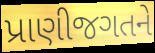
પ્રાણીજગતને